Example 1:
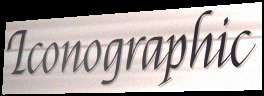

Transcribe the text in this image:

Iconographic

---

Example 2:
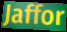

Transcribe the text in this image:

Jaffor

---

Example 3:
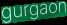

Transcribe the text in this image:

gurgaon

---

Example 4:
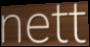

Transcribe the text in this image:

nett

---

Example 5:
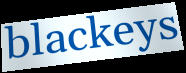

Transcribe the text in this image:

blackeys